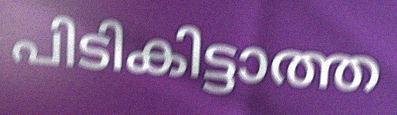
പിടികിട്ടാത്ത